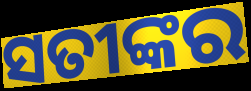
ସତୀଙ୍କର